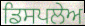
ਡਿਸਪਲੇਅ